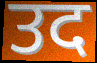
उद